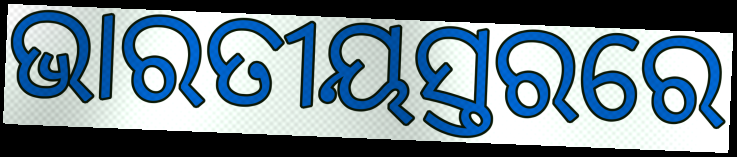
ଭାରତୀୟସ୍ତରରେ